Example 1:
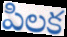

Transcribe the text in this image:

పిలక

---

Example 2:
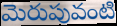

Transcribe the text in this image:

మెరుపువంటి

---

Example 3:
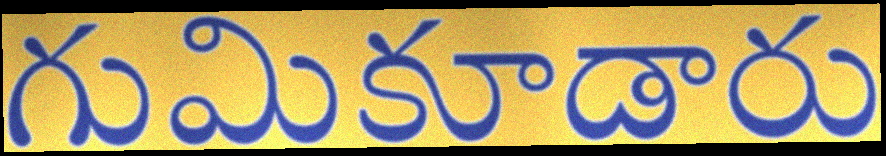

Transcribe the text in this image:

గుమికూడారు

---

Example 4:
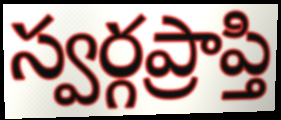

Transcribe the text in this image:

స్వర్గప్రాప్తి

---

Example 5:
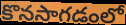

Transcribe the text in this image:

కొనసాగడంలో